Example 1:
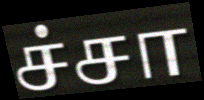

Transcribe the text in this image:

ச்சா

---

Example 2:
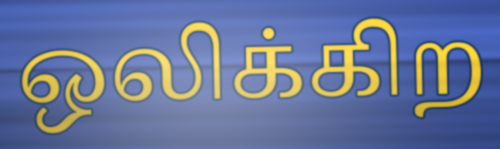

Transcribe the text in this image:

ஒலிக்கிற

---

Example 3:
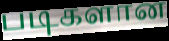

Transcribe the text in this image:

படிகளான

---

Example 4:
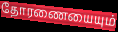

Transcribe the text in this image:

தோரணையையும்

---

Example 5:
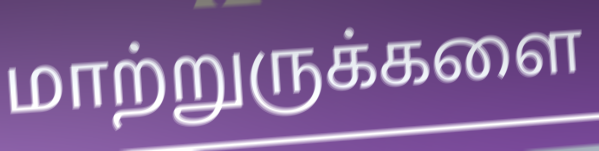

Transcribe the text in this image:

மாற்றுருக்களை